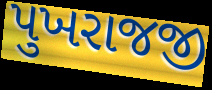
પુખરાજજી